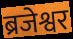
ब्रजेश्वर